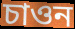
চাওন